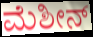
ಮೆಶೀನ್